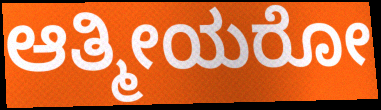
ಆತ್ಮೀಯರೋ